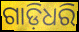
ଗାଡ଼ିଧରି